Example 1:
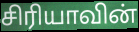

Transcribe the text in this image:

சிரியாவின்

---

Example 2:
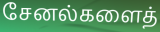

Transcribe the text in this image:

சேனல்களைத்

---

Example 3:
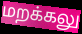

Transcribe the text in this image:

மறக்கலு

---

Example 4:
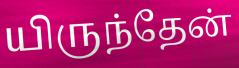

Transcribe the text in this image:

யிருந்தேன்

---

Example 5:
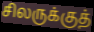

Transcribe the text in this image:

சிலருக்குத்